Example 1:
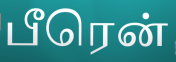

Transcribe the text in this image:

பீரென்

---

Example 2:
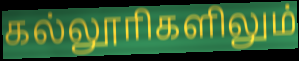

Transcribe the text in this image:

கல்லூரிகளிலும்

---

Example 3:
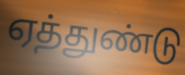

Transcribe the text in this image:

ஏத்துண்டு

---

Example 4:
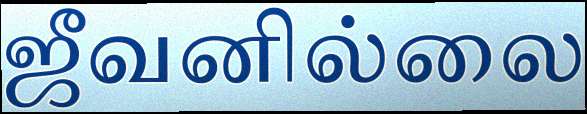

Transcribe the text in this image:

ஜீவனில்லை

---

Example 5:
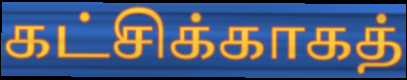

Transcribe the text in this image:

கட்சிக்காகத்